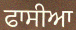
ਫਾਸੀਆ